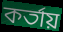
কর্তায়